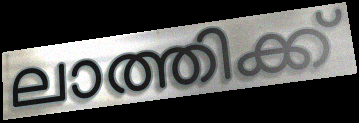
ലാത്തിക്ക്